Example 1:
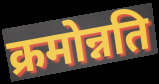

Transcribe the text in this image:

क्रमोन्नति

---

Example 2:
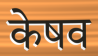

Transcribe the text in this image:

केषव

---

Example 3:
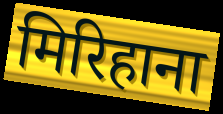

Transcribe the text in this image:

मिरिहाना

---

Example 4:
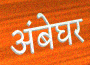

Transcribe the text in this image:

अंबेघर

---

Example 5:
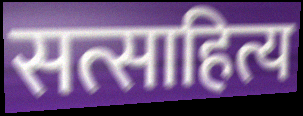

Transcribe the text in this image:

सत्साहित्य